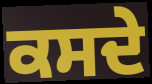
ਕਸਦੇ